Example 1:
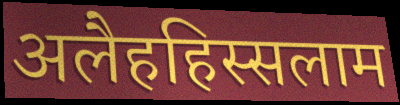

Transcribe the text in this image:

अलैहहिस्सलाम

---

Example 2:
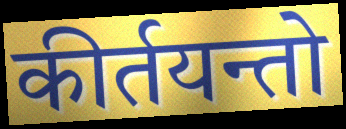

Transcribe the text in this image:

कीर्तयन्तो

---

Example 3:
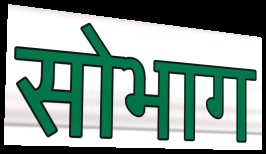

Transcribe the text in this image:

सोभाग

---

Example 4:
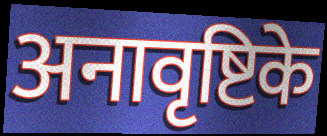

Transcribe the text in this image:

अनावृष्टिके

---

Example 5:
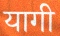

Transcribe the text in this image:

यागी